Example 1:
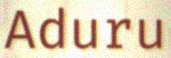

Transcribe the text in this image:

Aduru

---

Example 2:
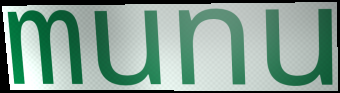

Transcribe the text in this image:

munu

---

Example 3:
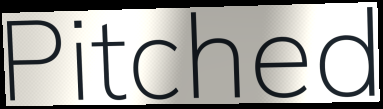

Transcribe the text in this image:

Pitched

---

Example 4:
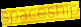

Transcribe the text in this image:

spaceship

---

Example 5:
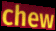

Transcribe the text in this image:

chew